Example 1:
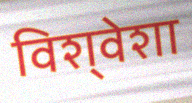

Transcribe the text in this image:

विश्वेशा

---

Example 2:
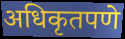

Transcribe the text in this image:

अधिकृतपणे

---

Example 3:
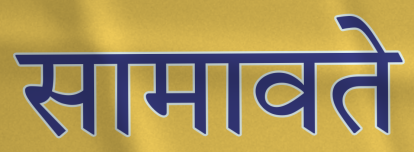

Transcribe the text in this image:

सामावते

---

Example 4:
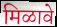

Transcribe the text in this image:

मिळावे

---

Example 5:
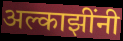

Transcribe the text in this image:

अल्काझींनी